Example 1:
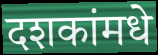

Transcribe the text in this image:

दशकांमधे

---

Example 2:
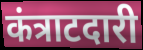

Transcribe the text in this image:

कंत्राटदारी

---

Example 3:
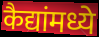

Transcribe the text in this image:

कैद्यांमध्ये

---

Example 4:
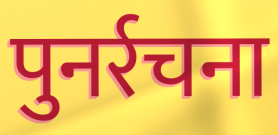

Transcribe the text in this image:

पुनर्रचना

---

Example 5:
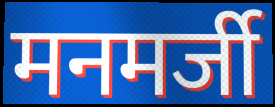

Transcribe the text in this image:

मनमर्जी